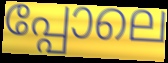
പ്പോലെ